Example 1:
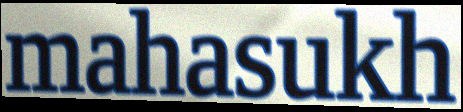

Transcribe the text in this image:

mahasukh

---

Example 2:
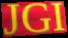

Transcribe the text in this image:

JGI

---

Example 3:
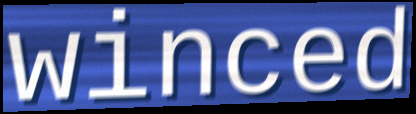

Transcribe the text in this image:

winced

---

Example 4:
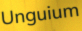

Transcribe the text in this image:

Unguium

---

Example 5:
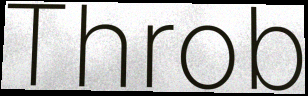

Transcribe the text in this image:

Throb